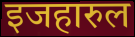
इजहारुल